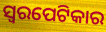
ସ୍ଵରପେଟିକାର